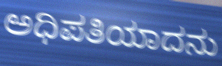
ಅಧಿಪತಿಯಾದನು